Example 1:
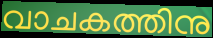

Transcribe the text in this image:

വാചകത്തിനു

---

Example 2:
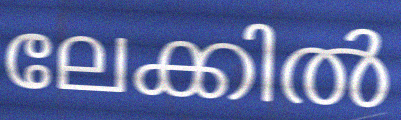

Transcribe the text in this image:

ലേക്കിൽ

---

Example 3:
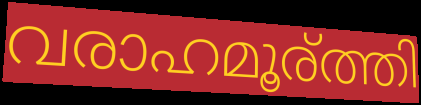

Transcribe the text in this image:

വരാഹമൂര്ത്തി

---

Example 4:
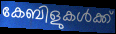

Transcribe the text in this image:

കേബിളുകൾക്ക്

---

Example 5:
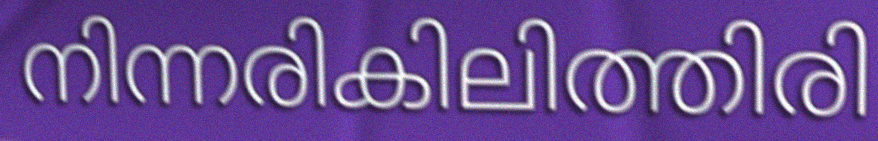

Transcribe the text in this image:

നിന്നരികിലിത്തിരി